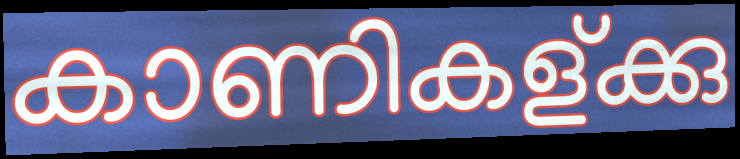
കാണികള്ക്കു